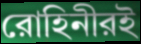
রোহিনীরই